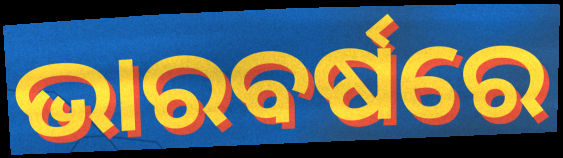
ଭାରବର୍ଷରେ